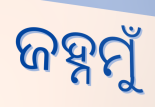
ଜହ୍ନମୁଁ